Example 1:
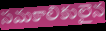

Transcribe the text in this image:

సమకాలికులైన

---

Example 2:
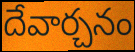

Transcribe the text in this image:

దేవార్చనం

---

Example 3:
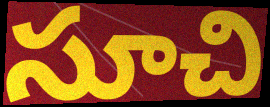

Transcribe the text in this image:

సూచి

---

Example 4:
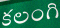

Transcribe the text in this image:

కలంగి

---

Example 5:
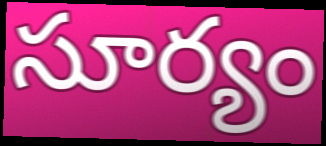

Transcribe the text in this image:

సూర్యం